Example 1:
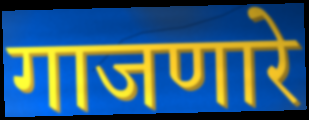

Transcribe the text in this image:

गाजणारे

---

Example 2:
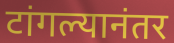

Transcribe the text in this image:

टांगल्यानंतर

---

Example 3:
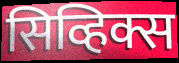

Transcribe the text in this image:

सिव्हिक्स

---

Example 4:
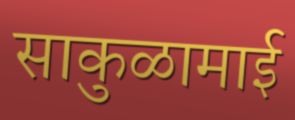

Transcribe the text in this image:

साकुळामाई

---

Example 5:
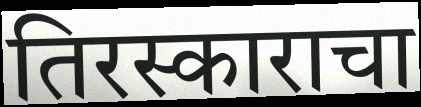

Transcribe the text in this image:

तिरस्काराचा